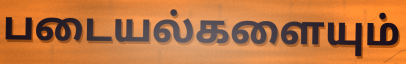
படையல்களையும்